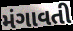
મંગાવતી